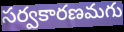
సర్వకారణమగు